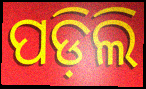
ପଡ଼ିଲି